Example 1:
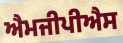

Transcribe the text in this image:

ਐਮਜੀਪੀਐਸ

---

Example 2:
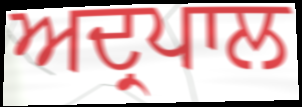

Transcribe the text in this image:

ਅਦ੍ਰਪਾਲ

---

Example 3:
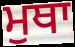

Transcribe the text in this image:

ਮੁਥਾ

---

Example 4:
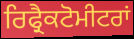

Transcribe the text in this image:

ਰਿਫ੍ਰੈਕਟੋਮੀਟਰਾਂ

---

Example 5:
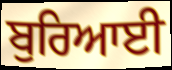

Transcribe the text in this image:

ਬੁਰਿਆਈ